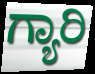
ಗ್ಯಾರಿ